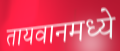
तायवानमध्ये